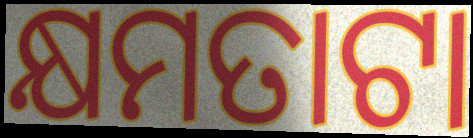
କ୍ଷମତାଟା